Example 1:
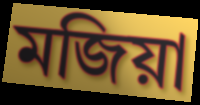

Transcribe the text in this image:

মজিয়া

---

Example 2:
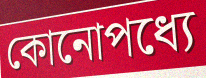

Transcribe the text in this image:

কোনোপধ্যে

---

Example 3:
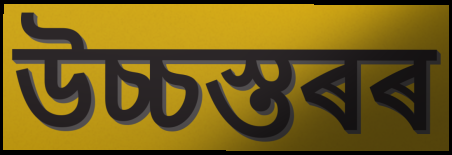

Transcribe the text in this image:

উচ্চস্তৰৰ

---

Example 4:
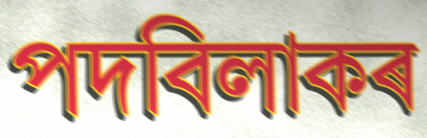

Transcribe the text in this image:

পদবিলাকৰ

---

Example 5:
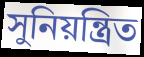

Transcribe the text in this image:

সুনিয়ন্ত্ৰিত